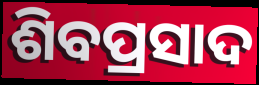
ଶିବପ୍ରସାଦ